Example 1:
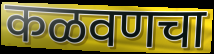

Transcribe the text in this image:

कळवणचा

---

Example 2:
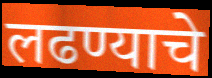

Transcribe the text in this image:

लढण्याचे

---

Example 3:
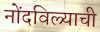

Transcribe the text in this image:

नोंदविल्याची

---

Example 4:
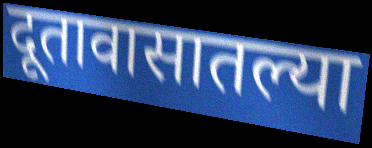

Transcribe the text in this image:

दूतावासातल्या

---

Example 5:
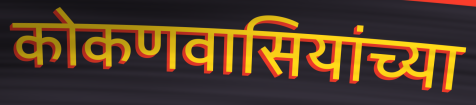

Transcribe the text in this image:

कोकणवासियांच्या